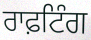
ਰਾਫ਼ਟਿੰਗ